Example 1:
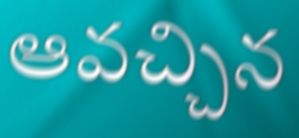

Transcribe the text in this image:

ఆవచ్చిన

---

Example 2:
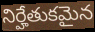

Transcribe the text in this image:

నిర్హేతుకమైన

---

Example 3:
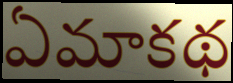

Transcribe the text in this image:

ఏమాకథ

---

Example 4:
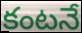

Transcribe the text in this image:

కంటనే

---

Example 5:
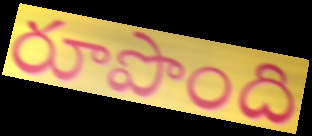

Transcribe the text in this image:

రూపొంది